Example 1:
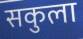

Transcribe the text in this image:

सकुला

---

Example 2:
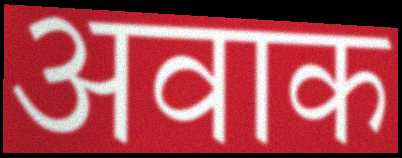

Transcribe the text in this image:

अवाक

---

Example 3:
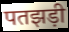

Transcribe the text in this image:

पतझड़ी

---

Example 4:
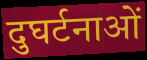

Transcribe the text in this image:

दुघर्टनाओं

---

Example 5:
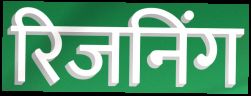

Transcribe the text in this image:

रिजनिंग